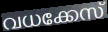
വധക്കേസ്